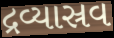
દ્રવ્યાસ્રવ